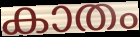
കാതം